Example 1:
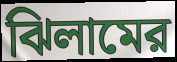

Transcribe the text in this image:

ঝিলামের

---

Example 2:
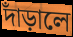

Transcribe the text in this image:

দাঁড়ালে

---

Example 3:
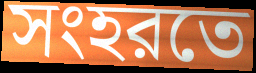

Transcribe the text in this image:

সংহরতে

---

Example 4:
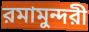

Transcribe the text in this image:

রমামুন্দরী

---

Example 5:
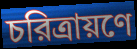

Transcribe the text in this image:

চরিত্রায়ণে